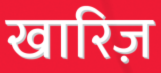
खारिज़